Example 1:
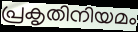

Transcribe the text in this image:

പ്രകൃതിനിയമം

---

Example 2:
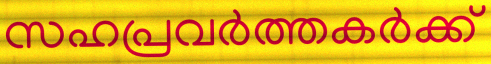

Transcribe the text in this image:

സഹപ്രവർത്തകർക്ക്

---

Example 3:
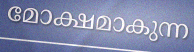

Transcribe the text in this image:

മോക്ഷമാകുന്ന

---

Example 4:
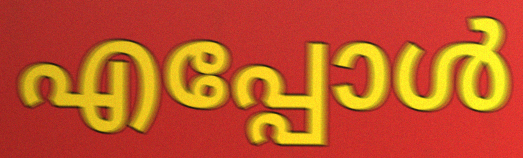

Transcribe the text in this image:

എപ്പോൾ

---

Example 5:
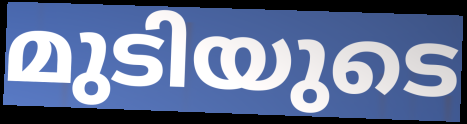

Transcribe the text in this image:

മുടിയുടെ